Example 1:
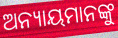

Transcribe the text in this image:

ଅନ୍ୟାୟମାନଙ୍କୁ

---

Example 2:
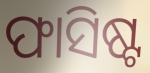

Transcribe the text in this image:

ଫାସିଷ୍ଟ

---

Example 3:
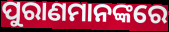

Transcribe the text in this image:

ପୁରାଣମାନଙ୍କରେ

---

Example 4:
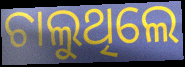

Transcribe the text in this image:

ଚାଲୁଥିଲେ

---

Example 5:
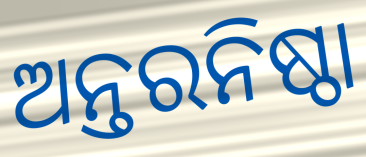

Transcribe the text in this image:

ଅନ୍ତରନିଷ୍ଠା